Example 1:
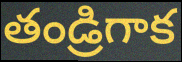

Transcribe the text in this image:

తండ్రిగాక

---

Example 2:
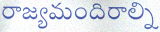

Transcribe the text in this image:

రాజ్యమందిరాల్ని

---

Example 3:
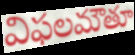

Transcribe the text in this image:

విఫలమౌతూ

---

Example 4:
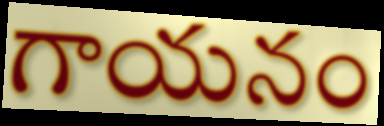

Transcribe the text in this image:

గాయనం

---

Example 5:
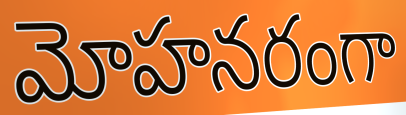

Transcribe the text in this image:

మోహనరంగా